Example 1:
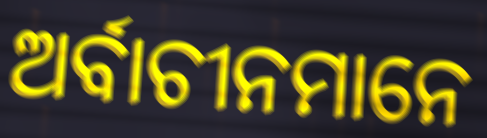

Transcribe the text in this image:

ଅର୍ବାଚୀନମାନେ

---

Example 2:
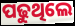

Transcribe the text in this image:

ପଢୁଥିଲେ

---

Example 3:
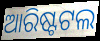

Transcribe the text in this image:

ଆରିଷ୍ଟଟଲ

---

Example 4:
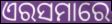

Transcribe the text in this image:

ଏରସମାରେ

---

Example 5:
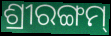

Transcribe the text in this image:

ଶ୍ରୀରଙ୍ଗମ୍